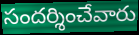
సందర్శించేవారు